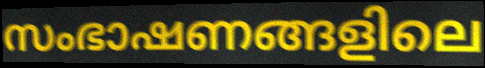
സംഭാഷണങ്ങളിലെ